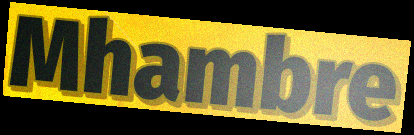
Mhambre